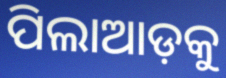
ପିଲାଆଡ଼କୁ